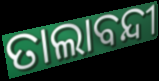
ତାଲାବନ୍ଦୀ